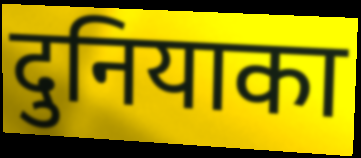
दुनियाका